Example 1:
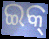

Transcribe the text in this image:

ଇକ୍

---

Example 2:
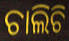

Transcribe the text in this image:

ଚାଲିଚି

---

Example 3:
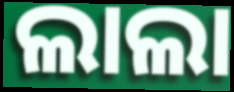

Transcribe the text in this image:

ଲାଲା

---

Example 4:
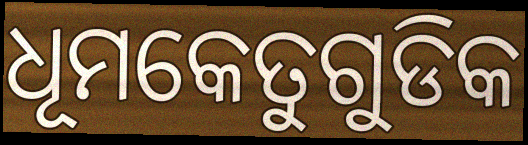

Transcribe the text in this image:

ଧୂମକେତୁଗୁଡିକ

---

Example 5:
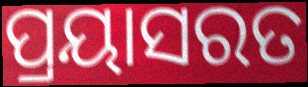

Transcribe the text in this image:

ପ୍ରୟାସରତ